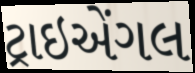
ટ્રાઇએંગલ